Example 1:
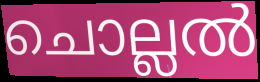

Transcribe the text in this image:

ചൊല്ലൽ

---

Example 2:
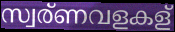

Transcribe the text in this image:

സ്വര്ണവളകള്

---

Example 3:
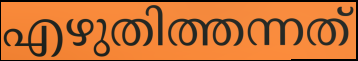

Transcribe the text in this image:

എഴുതിത്തന്നത്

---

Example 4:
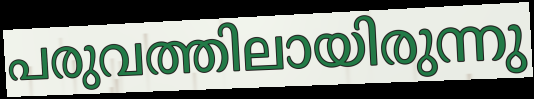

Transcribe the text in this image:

പരുവത്തിലായിരുന്നു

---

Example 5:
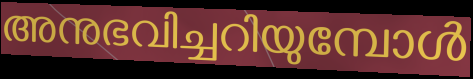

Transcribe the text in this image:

അനുഭവിച്ചറിയുമ്പോൾ